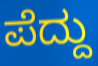
ಪೆದ್ದು